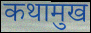
कथामुख